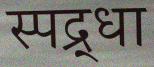
स्पद्र्धा